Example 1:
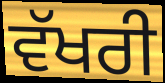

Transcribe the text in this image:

ਵੱਖਰੀ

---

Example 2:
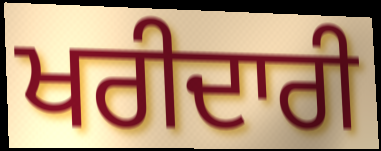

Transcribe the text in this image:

ਖਰੀਦਾਰੀ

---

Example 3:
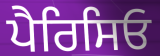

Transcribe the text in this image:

ਪੈਰਿਸਿਓ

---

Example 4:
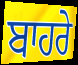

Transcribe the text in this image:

ਬਾਹਰੇ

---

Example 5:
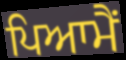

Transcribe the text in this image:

ਪਿਆਮੈਂ